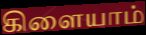
கிளையாம்